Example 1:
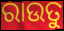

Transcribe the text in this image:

ରାଉତୁ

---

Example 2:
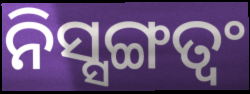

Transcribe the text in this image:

ନିସ୍ସଙ୍ଗତ୍ୱଂ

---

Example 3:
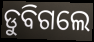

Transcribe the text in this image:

ଡୁବିଗଲେ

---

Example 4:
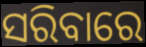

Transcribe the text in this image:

ସରିବାରେ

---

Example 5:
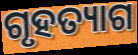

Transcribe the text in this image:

ଗୃହତ୍ୟାଗ